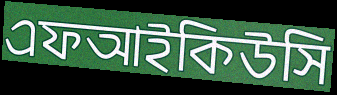
এফআইকিউসি